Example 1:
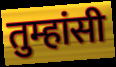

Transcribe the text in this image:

तुम्हांसी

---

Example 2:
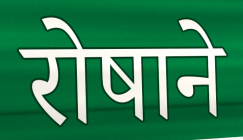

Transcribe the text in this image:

रोषाने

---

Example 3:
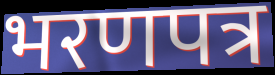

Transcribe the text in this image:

भरणपत्र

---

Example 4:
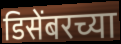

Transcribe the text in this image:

डिसेंबरच्या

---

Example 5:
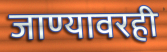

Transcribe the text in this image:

जाण्यावरही